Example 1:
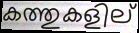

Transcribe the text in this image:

കത്തുകളില്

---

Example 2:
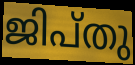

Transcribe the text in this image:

ജിപ്തു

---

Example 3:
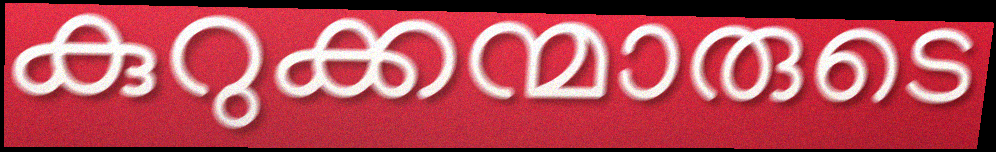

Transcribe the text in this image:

കുറുക്കന്മാരുടെ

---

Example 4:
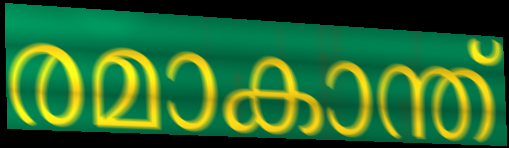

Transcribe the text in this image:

രമാകാന്ത്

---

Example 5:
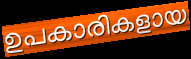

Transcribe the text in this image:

ഉപകാരികളായ